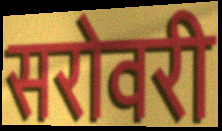
सरोवरी